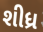
શીધ્ર